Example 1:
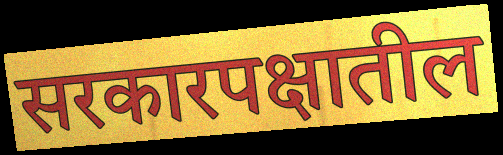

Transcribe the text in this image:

सरकारपक्षातील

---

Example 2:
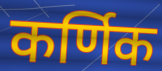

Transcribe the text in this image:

कर्णिक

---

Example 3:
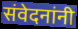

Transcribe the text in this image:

संवेदनांनी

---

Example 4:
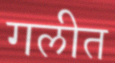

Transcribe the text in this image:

गलीत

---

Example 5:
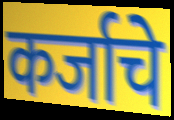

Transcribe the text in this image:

कर्जाचे